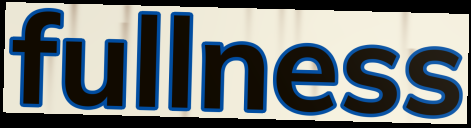
fullness